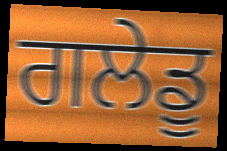
ਗਲੇਡੂ